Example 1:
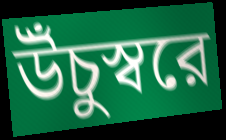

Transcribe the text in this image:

উঁচুস্বরে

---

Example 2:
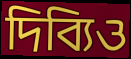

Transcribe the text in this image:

দিব্যিও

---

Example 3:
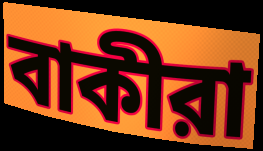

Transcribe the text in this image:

বাকীরা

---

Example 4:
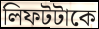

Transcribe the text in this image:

লিফটটাকে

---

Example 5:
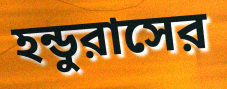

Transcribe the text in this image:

হন্ডুরাসের